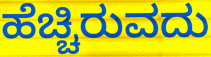
ಹೆಚ್ಚಿರುವದು